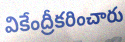
వికేంద్రీకరించారు